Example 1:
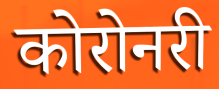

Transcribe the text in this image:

कोरोनरी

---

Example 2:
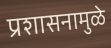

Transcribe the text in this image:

प्रशासनामुळे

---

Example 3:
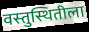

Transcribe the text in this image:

वस्तुस्थितीला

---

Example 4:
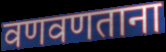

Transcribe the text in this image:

वणवणताना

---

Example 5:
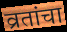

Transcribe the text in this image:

व्रतांचा